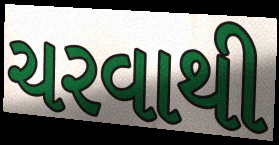
ચરવાથી